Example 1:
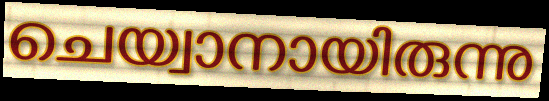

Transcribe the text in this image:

ചെയ്വാനായിരുന്നു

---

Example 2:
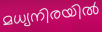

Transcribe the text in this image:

മധ്യനിരയിൽ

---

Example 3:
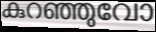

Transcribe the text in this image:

കുറഞ്ഞുവോ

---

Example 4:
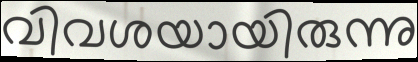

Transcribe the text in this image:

വിവശയായിരുന്നു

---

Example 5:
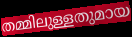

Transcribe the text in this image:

തമ്മിലുള്ളതുമായ